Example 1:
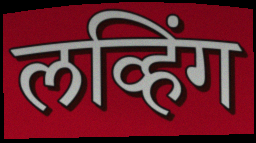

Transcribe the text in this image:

लव्हिंग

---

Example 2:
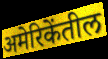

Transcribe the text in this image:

अमेरिकेंतील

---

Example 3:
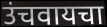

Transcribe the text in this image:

उंचवायचा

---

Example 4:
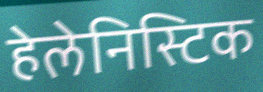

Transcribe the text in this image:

हेलेनिस्टिक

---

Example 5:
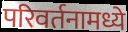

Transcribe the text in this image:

परिवर्तनामध्ये